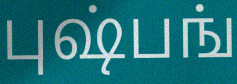
புஷ்பங்